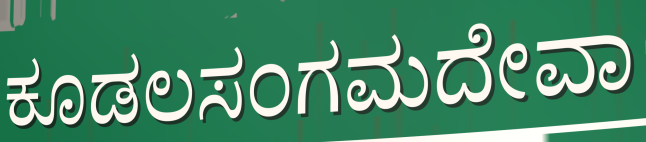
ಕೂಡಲಸಂಗಮದೇವಾ